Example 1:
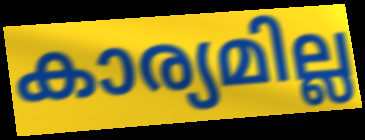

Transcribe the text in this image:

കാര്യമില്ല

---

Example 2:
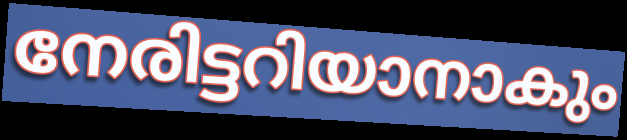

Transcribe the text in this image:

നേരിട്ടറിയാനാകും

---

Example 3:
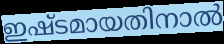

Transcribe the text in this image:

ഇഷ്ടമായതിനാൽ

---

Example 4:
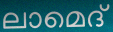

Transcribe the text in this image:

ലാമെദ്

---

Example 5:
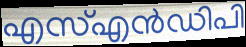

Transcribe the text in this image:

എസ്എൻഡിപി